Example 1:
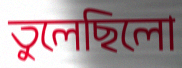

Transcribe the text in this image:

তুলেছিলো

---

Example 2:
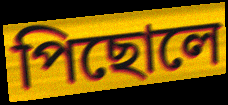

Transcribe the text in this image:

পিছোলে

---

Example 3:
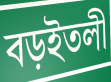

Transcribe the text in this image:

বড়ইতলী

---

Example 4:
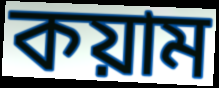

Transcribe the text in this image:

কয়াম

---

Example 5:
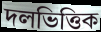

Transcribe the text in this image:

দলভিত্তিক